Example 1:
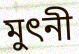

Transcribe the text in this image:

মুৎনী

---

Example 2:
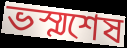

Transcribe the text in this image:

ভস্মশেষ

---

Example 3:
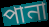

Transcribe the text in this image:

পানা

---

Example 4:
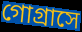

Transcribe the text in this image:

গোগ্রাসে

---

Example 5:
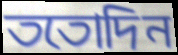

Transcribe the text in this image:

ততোদিন